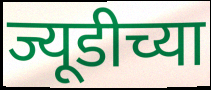
ज्यूडीच्या